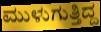
ಮುಳುಗುತ್ತಿದ್ದ